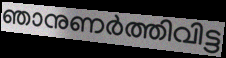
ഞാനുണർത്തിവിട്ട